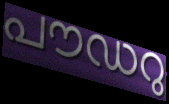
പൗഡറു